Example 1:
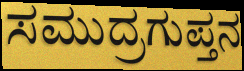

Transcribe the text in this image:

ಸಮುದ್ರಗುಪ್ತನ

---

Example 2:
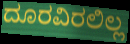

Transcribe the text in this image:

ದೂರವಿರಲಿಲ್ಲ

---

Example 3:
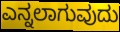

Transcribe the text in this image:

ಎನ್ನಲಾಗುವುದು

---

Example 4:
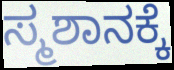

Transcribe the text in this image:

ಸ್ಮಶಾನಕ್ಕೆ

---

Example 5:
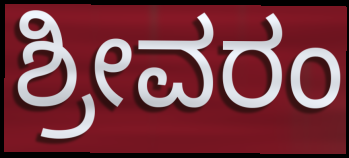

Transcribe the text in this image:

ಶ್ರೀವರಂ